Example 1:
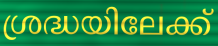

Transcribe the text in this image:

ശ്രദ്ധയിലേക്ക്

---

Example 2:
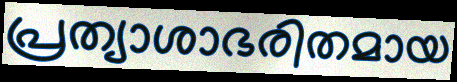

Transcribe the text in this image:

പ്രത്യാശാഭരിതമായ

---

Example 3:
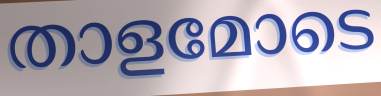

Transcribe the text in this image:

താളമോടെ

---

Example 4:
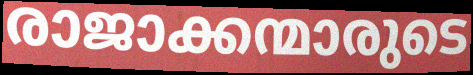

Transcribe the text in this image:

രാജാക്കന്മാരുടെ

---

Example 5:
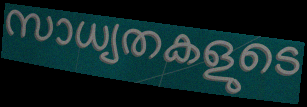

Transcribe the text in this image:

സാധ്യതകളുടെ